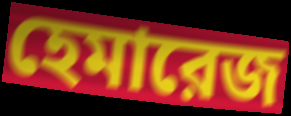
হেমারেজ